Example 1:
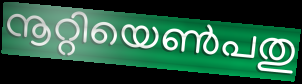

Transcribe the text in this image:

നൂറ്റിയെൺപതു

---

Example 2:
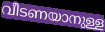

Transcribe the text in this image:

വീടണയാനുള്ള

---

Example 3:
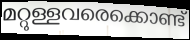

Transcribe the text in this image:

മറ്റുള്ളവരെക്കൊണ്ട്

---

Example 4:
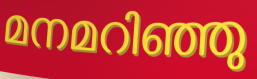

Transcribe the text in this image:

മനമറിഞ്ഞു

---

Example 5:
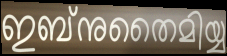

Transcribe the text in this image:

ഇബ്നുതൈമിയ്യ